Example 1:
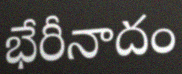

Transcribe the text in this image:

భేరీనాదం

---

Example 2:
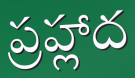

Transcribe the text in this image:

ప్రహ్లాద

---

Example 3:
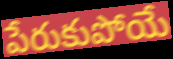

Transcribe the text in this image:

పేరుకుపోయే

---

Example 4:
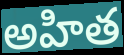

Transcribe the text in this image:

అహిత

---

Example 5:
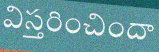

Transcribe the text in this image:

విస్తరించిందా